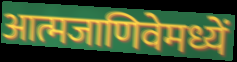
आत्मजाणिवेमध्यें